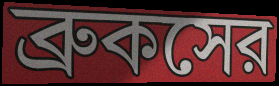
ব্রুকসের